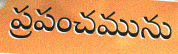
ప్రపంచమును